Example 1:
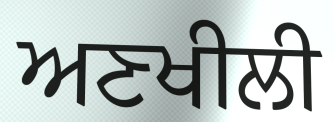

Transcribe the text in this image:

ਅਣਖੀਲੀ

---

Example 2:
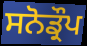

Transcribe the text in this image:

ਸਨੋਡ੍ਰੌਪ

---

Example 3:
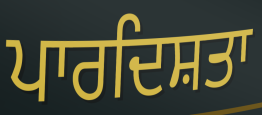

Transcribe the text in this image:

ਪਾਰਦਿਸ਼ਤਾ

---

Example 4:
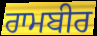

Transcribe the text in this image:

ਰਾਮਬੀਰ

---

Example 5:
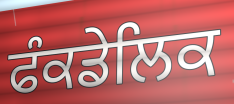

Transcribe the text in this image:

ਫੰਕਡੇਲਿਕ